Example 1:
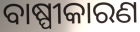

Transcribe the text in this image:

ବାଷ୍ପୀକାରଣ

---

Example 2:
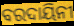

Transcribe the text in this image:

ବରଦାୟିନୀ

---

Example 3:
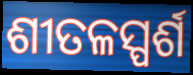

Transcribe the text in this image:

ଶୀତଳସ୍ପର୍ଶ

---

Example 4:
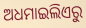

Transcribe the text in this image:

ଅଧମାଇଲିଏରୁ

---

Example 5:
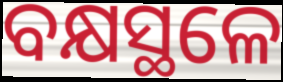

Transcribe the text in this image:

ବକ୍ଷସ୍ଥଳେ